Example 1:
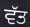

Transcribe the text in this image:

ਵੱਤ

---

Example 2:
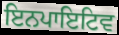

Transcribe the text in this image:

ਇਨਪਾਇਟਿਵ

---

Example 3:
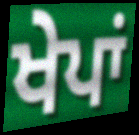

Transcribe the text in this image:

ਖੇਪਾਂ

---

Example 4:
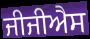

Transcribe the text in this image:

ਜੀਜੀਐਸ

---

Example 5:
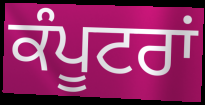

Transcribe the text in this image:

ਕੰਪੂਟਰਾਂ